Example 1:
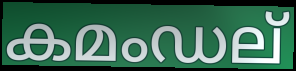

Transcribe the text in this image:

കമംഡല്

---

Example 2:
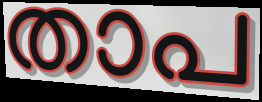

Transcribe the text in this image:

താപ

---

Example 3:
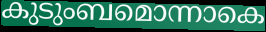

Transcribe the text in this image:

കുടുംബമൊന്നാകെ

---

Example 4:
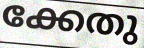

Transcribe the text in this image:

ക്കേതു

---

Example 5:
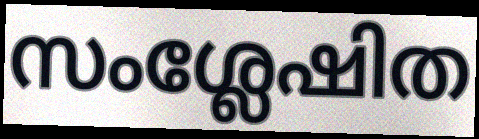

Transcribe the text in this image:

സംശ്ലേഷിത